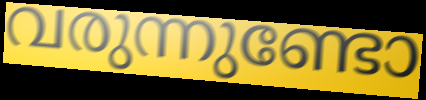
വരുന്നുണ്ടോ